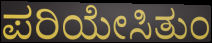
ಪರಿಯೇಸಿತುಂ